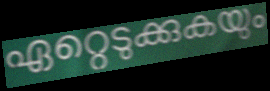
ഏറ്റെടുക്കുകയും